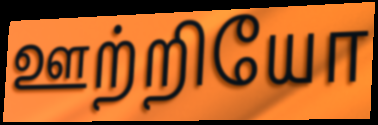
ஊற்றியோ